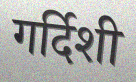
गर्दिशी